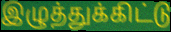
இழுத்துக்கிட்டு